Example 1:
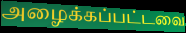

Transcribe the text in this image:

அழைக்கப்பட்டவை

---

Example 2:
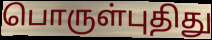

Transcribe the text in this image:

பொருள்புதிது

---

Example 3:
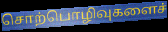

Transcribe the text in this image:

சொற்பொழிவுகளைச்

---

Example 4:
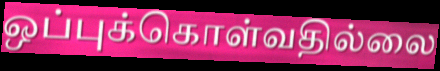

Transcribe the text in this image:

ஒப்புக்கொள்வதில்லை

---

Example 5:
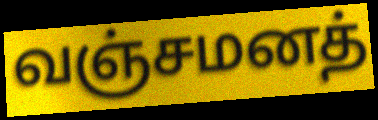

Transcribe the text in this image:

வஞ்சமனத்